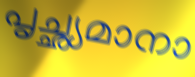
പൃച്ഛ്യമാനാ